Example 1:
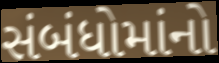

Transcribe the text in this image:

સંબંધોમાંનો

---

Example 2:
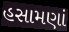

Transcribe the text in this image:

હસામણાં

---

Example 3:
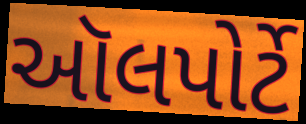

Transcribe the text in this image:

ઑલપોર્ટે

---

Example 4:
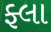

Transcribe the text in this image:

ફ્લા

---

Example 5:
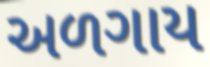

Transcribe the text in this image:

અળગાય